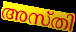
അസ്തി